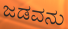
ಜಡವನು